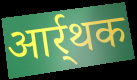
आर्र्थक